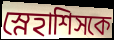
স্নেহাশিসকে